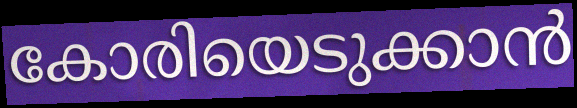
കോരിയെടുക്കാൻ